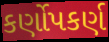
કર્ણોપકર્ણ